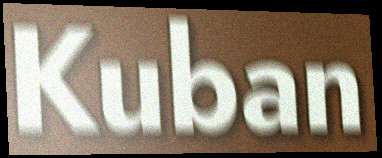
Kuban